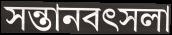
সন্তানবৎসলা